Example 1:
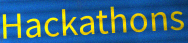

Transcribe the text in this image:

Hackathons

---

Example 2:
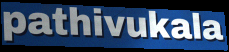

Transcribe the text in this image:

pathivukala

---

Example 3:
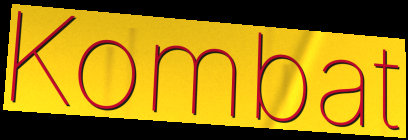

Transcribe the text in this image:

Kombat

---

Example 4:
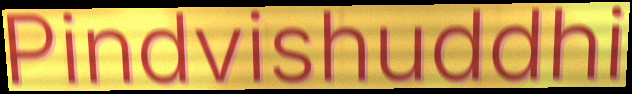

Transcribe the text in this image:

Pindvishuddhi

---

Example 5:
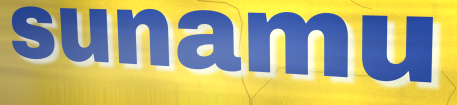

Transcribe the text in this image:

sunamu